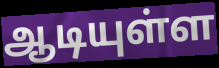
ஆடியுள்ள